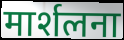
मार्शलना